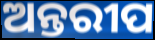
ଅନ୍ତରୀପ